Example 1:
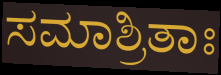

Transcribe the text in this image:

ಸಮಾಶ್ರಿತಾಃ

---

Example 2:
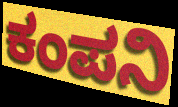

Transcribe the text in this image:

ಕಂಪನಿ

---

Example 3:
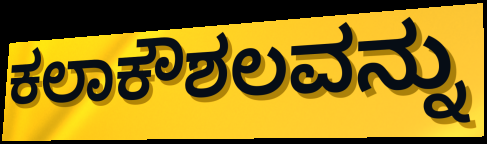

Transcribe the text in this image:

ಕಲಾಕೌಶಲವನ್ನು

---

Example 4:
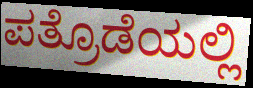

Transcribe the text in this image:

ಪತ್ರೊಡೆಯಲ್ಲಿ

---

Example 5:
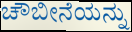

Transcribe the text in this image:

ಚೌಬೀನೆಯನ್ನು